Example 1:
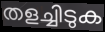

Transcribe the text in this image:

തളച്ചിടുക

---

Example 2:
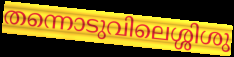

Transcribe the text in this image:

തന്നൊടുവിലെശ്ശിശു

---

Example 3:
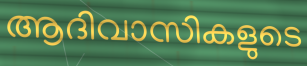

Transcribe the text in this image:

ആദിവാസികളുടെ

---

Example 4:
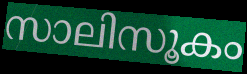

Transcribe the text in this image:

സാലിസൂകം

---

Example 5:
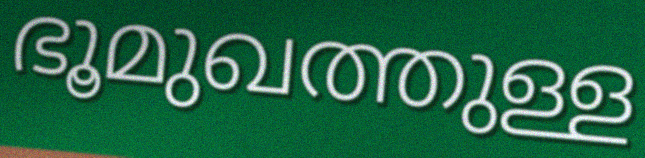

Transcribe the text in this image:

ഭൂമുഖത്തുള്ള